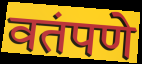
वतंपणे